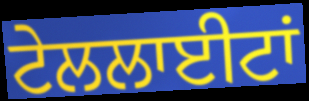
ਟੇਲਲਾਈਟਾਂ